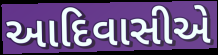
આદિવાસીએ